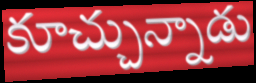
కూచ్చున్నాడు